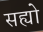
सह्यो